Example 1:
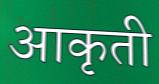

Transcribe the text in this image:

आकृती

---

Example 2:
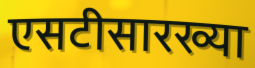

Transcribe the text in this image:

एसटीसारख्या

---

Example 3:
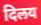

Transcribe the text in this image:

दिलय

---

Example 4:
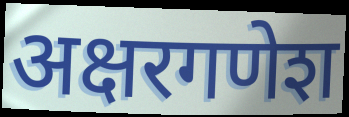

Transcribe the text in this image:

अक्षरगणेश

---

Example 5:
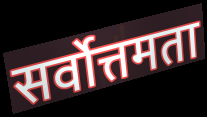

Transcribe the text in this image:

सर्वोत्तमता